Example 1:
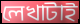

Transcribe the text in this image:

লেখাটাই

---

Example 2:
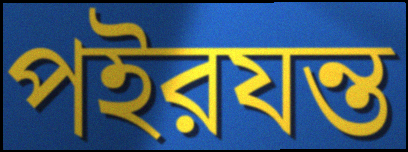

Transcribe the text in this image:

পইরযন্ত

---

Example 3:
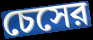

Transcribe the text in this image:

চেসের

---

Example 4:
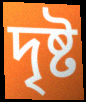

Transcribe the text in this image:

দৃষ্ট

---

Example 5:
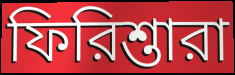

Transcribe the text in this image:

ফিরিশ্তারা